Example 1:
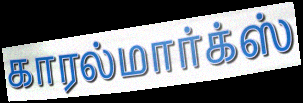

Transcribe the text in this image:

காரல்மார்க்ஸ்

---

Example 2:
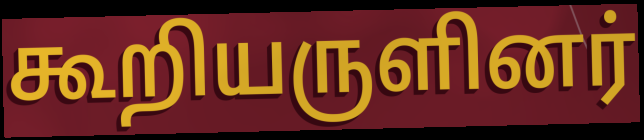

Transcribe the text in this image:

கூறியருளினர்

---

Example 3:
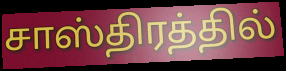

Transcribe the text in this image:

சாஸ்திரத்தில்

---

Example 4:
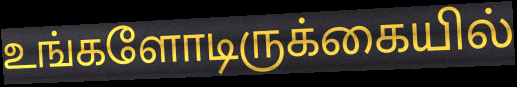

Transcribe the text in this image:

உங்களோடிருக்கையில்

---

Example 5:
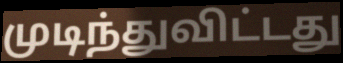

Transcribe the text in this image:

முடிந்துவிட்டது